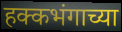
हक्कभंगाच्या